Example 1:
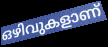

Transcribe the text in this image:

ഒഴിവുകളാണ്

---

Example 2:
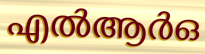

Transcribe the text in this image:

എൽആർഒ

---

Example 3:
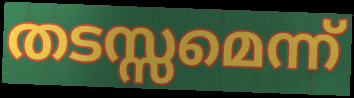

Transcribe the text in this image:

തടസ്സമെന്ന്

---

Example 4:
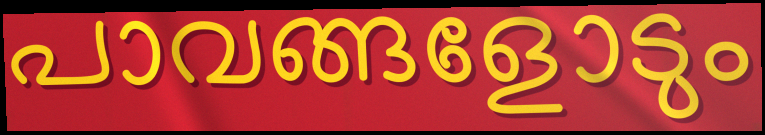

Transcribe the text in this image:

പാവങ്ങളോടും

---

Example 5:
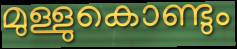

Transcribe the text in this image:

മുള്ളുകൊണ്ടും